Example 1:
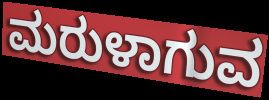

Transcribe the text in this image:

ಮರುಳಾಗುವ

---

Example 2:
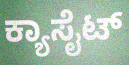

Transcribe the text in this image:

ಕ್ಯಾಸೈಟ್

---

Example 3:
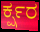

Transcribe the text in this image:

ರ್ಕ್ಷರ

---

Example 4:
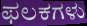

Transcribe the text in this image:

ಫಲಕಗಳು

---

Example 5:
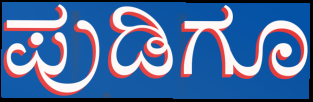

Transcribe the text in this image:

ಪುಡಿಗೂ